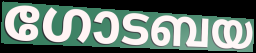
ഗോടബയ